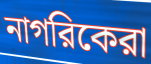
নাগরিকেরা